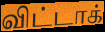
விட்டாக்